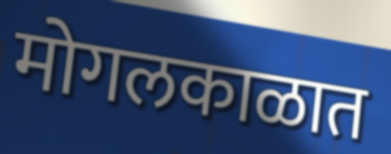
मोगलकाळात